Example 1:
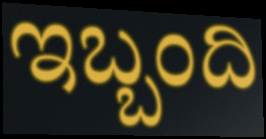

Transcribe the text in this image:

ಇಬ್ಬಂದಿ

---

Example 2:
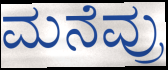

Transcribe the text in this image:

ಮನೆವ್ರು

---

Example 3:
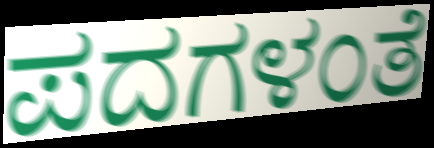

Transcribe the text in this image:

ಪದಗಳಂತೆ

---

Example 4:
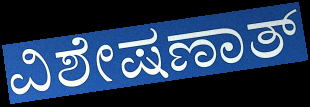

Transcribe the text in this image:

ವಿಶೇಷಣಾತ್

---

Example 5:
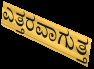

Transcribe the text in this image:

ಎತ್ತರವಾಗುತ್ತ